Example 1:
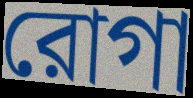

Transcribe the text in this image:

রোগা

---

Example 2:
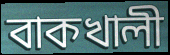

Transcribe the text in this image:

বাকখালী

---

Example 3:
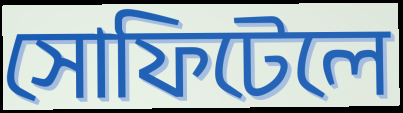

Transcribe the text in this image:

সোফিটেলে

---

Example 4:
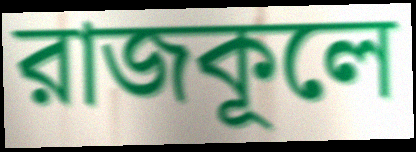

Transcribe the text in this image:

রাজকূলে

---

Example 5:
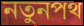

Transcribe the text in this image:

নতুনপথ